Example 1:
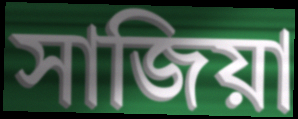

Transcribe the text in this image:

সাজিয়া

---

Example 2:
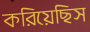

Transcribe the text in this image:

করিয়েছিস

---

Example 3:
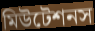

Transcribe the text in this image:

মিউটেশনস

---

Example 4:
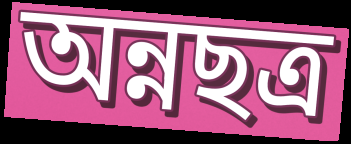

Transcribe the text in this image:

অন্নছত্র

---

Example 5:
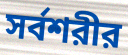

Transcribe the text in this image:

সর্বশরীর